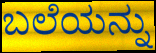
ಬಲೆಯನ್ನು